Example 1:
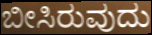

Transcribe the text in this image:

ಬೀಸಿರುವುದು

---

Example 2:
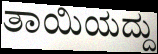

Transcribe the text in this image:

ತಾಯಿಯದ್ದು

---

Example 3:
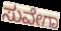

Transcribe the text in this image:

ಸುವೇಗಾ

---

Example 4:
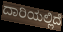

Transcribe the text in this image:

ದಾರಿಯಲ್ಲಿದೆ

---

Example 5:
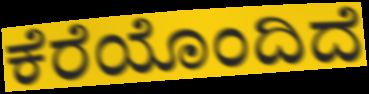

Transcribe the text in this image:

ಕೆರೆಯೊಂದಿದೆ